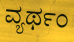
ವ್ಯರ್ಥಂ